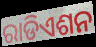
ରାଡିଏଶନ